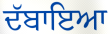
ਦੱਬਾਇਆ